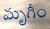
మృగీం